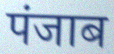
पंजाब